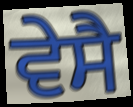
ਵੇਸੈ